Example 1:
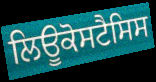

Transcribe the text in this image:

ਲਿਊਕੋਸਟੈਸਿਸ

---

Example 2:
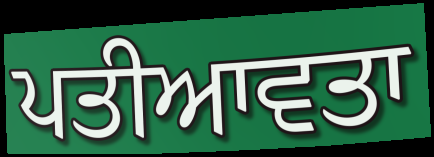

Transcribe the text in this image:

ਪਤੀਆਵਤਾ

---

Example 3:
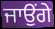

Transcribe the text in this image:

ਜਾਉਂਗੇ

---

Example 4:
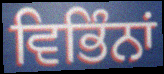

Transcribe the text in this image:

ਵਿਭਿੰਨਾਂ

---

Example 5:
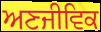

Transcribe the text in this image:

ਅਣਜੀਵਿਕ